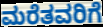
ಮರೆತವರಿಗೆ